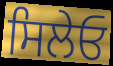
ਸਿਲੇਓ